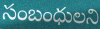
సంబంధులని